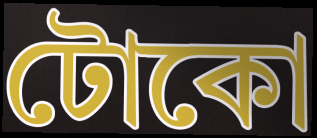
টোকো